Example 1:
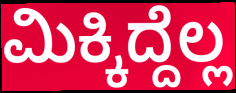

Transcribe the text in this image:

ಮಿಕ್ಕಿದ್ದೆಲ್ಲ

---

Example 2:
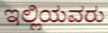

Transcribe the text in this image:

ಇಲ್ಲಿಯವರು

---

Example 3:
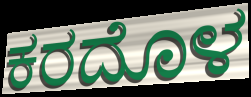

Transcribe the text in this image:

ಕರದೊಳ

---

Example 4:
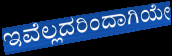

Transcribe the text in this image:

ಇವೆಲ್ಲದರಿಂದಾಗಿಯೇ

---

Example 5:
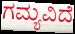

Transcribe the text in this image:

ಗಮ್ಯವಿದೆ